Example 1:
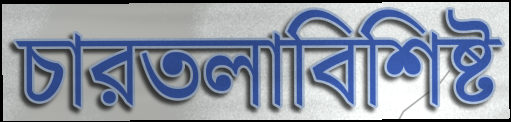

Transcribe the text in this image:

চারতলাবিশিষ্ট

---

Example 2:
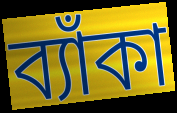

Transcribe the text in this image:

ব্যাঁকা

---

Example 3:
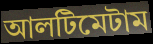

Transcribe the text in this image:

আলটিমেটাম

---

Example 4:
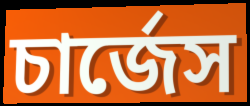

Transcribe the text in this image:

চার্জেস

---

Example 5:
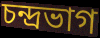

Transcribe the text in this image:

চন্দ্রভাগ